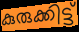
കുരുക്കിട്ട്